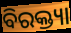
ବିରକ୍ତ୍ୟା